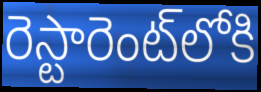
రెస్టారెంట్‌లోకి